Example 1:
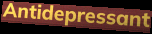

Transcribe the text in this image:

Antidepressant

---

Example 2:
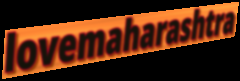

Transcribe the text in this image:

lovemaharashtra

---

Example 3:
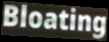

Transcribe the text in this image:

Bloating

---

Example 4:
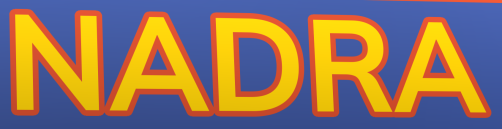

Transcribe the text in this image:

NADRA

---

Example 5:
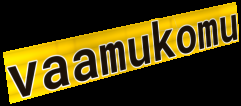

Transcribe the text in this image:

vaamukomu